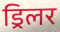
ड्रिलर